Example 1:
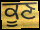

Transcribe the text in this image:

ਕੂਣ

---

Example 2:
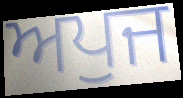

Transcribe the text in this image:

ਅਪੁਜ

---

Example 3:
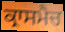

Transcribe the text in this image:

ਕ੍ਰਾਸਮੈਚ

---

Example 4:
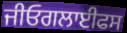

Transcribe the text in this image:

ਜੀਓਗਲਾਈਫਸ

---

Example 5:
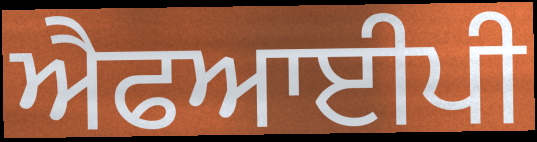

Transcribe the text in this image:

ਐਫਆਈਪੀ